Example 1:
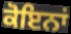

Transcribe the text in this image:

ਕੋਇਨਾਂ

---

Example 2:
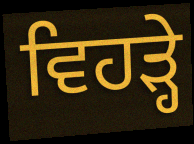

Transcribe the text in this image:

ਵਿਹੜ੍ਹੇ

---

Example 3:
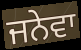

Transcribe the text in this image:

ਜਨੇਵਾ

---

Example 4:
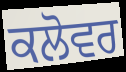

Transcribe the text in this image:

ਕਲੋਵਰ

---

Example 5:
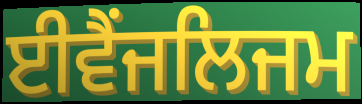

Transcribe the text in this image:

ਈਵੈਂਜਲਿਜਮ